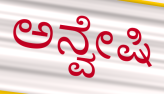
ಅನ್ವೇಷಿ